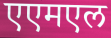
एएमएल